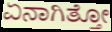
ಏನಾಗಿತ್ತೋ